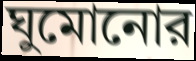
ঘুমোনোর